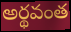
అర్థవంత